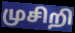
முசிறி